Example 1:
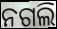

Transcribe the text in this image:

ନଗଲି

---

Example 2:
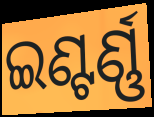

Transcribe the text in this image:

ଇଣ୍ଟର୍ଣ୍ଣ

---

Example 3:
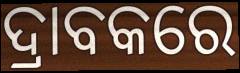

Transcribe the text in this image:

ଦ୍ରାବକରେ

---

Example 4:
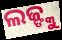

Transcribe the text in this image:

ଲଜ୍ଙ୍କୁ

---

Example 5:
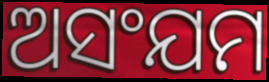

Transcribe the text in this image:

ଅସଂଯମ